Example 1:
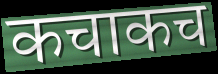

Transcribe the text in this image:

कचाकच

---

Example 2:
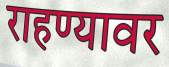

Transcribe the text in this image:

राहण्यावर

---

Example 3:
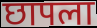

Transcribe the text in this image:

छापला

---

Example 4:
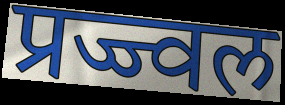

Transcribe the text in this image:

प्रज्ज्वल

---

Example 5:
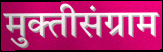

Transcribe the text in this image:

मुक्तीसंग्राम